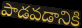
పాడవడానికి